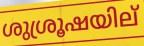
ശുശ്രൂഷയില്